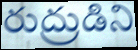
రుద్రుడిని